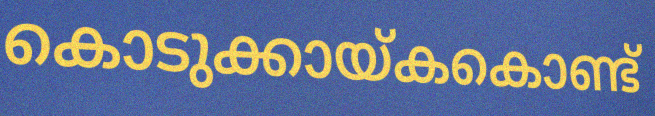
കൊടുക്കായ്കകൊണ്ട്